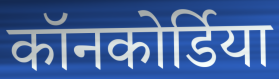
कॉनकोर्डिया